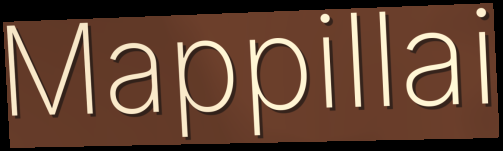
Mappillai